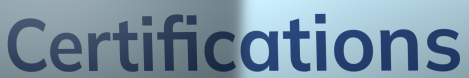
Certifications